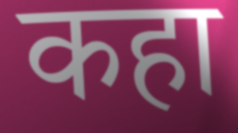
कहा